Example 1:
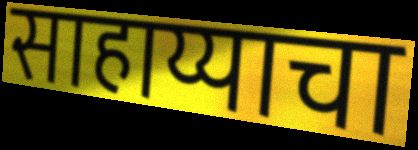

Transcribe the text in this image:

साहाय्याचा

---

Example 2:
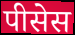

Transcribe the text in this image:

पीसेस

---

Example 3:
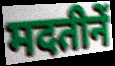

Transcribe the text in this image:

मदतीनें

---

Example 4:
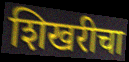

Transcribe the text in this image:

शिखरीचा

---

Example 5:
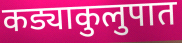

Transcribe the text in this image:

कड्याकुलुपात